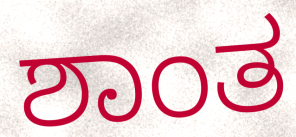
ಶಾಂತ